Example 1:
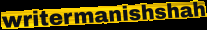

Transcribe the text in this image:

writermanishshah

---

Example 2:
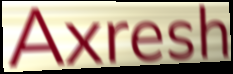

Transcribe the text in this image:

Axresh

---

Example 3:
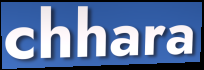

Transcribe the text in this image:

chhara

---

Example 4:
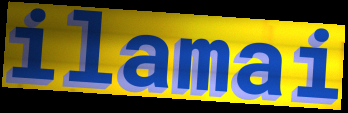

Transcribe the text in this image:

ilamai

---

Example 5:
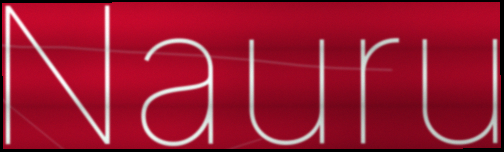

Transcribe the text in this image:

Nauru